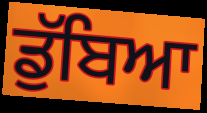
ਡੁੱਬਿਆ